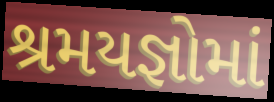
શ્રમયજ્ઞોમાં